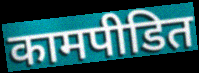
कामपीडित